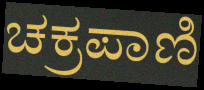
ಚಕ್ರಪಾಣಿ